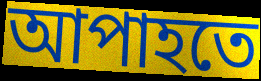
আপাহতে